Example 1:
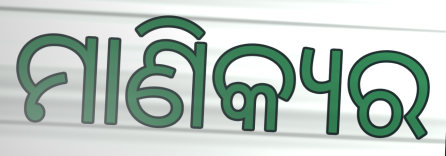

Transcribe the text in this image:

ମାଣିକ୍ୟର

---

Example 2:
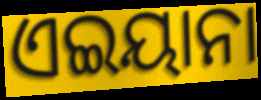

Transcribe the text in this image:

ଏଇୟାନା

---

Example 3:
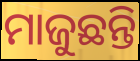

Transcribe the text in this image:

ମାଜୁଛନ୍ତି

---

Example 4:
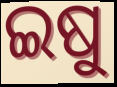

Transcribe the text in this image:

ଇଷୁ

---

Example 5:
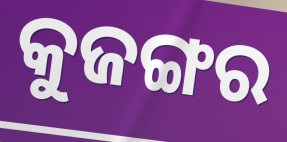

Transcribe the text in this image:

କୁଜଙ୍ଗର